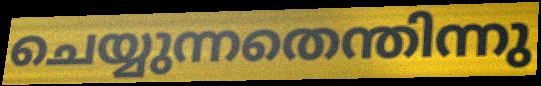
ചെയ്യുന്നതെന്തിന്നു